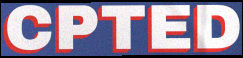
CPTED